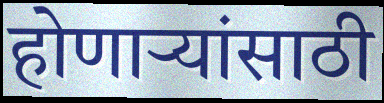
होणाऱ्यांसाठी